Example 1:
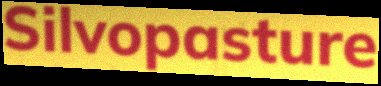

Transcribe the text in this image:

Silvopasture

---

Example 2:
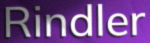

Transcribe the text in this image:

Rindler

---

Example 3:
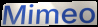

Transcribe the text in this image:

Mimeo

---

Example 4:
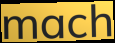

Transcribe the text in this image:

mach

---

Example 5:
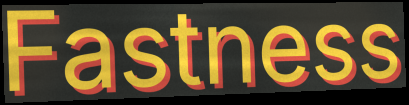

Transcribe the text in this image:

Fastness